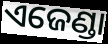
ଏଜେଣ୍ଡା